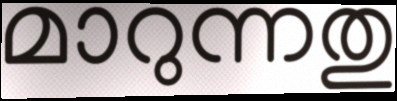
മാറുന്നതു